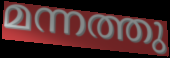
മന്നത്തു